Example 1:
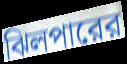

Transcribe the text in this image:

ঝিলপারের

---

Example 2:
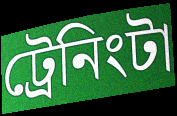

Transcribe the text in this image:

ট্রেনিংটা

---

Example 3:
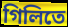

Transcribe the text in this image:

গিলিতে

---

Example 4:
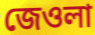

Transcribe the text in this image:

জেওলা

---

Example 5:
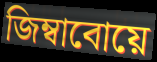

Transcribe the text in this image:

জিম্বাবোয়ে